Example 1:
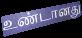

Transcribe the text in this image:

உண்டானது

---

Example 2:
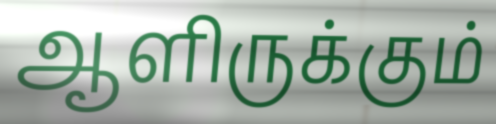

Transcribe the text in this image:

ஆளிருக்கும்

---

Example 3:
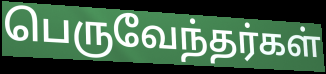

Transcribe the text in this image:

பெருவேந்தர்கள்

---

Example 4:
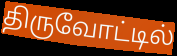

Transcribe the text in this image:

திருவோட்டில்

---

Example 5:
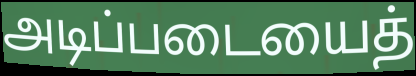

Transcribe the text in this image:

அடிப்படையைத்